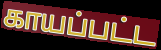
காயப்பட்ட